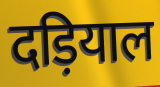
दड़ियाल